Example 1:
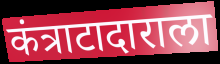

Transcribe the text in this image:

कंत्राटादाराला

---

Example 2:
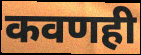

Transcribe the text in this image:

कवणही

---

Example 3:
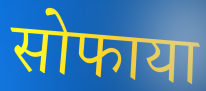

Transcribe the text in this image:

सोफाया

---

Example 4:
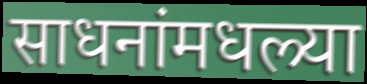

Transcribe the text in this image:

साधनांमधल्या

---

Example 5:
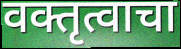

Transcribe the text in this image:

वक्तृत्वाचा